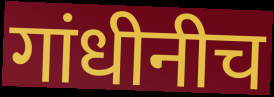
गांधीनीच